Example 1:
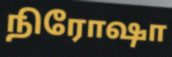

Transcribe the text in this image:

நிரோஷா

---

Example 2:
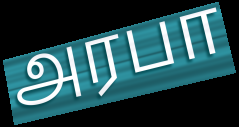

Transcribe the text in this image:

அரபா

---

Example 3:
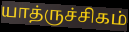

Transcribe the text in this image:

யாத்ருச்சிகம்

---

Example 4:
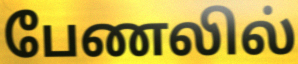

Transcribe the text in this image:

பேணலில்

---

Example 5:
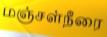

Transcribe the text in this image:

மஞ்சள்நீரை